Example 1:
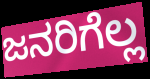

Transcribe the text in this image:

ಜನರಿಗೆಲ್ಲ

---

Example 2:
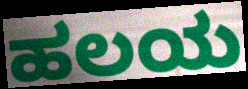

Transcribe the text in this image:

ಹಲಯ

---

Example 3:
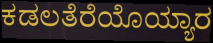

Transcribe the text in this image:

ಕಡಲತೆರೆಯೊಯ್ಯಾರ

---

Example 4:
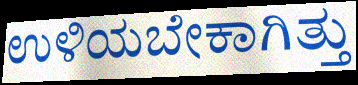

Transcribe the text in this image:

ಉಳಿಯಬೇಕಾಗಿತ್ತು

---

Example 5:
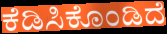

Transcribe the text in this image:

ಕೆಡಿಸಿಕೊಂಡಿದೆ